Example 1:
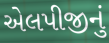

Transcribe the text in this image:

એલપીજીનું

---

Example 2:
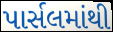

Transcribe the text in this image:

પાર્સલમાંથી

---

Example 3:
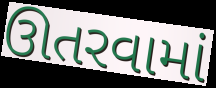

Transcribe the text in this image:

ઊતરવામાં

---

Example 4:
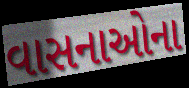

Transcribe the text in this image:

વાસનાઓના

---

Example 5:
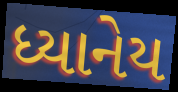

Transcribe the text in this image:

ધ્યાનેય